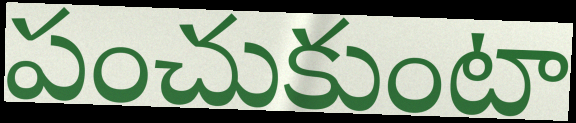
పంచుకుంటా